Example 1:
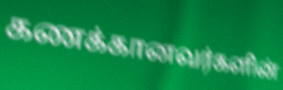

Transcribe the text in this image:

கணக்கானவர்களின்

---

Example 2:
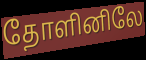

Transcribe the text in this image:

தோளினிலே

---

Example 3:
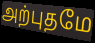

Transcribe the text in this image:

அற்புதமே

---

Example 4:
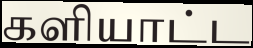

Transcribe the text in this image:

களியாட்ட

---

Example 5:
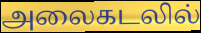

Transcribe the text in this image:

அலைகடலில்